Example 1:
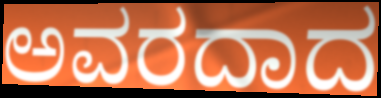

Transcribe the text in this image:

ಅವರದಾದ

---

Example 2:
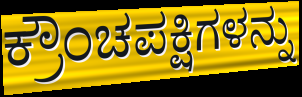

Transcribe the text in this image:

ಕ್ರೌಂಚಪಕ್ಷಿಗಳನ್ನು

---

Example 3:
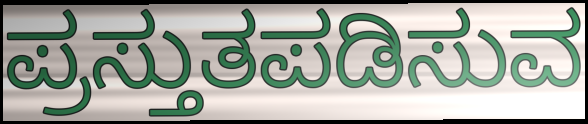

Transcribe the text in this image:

ಪ್ರಸ್ತುತಪಡಿಸುವ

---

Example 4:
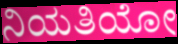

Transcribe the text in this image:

ನಿಯತಿಯೋ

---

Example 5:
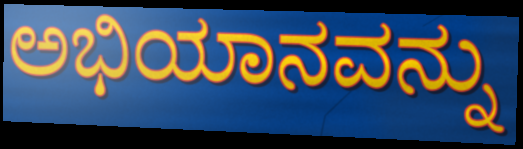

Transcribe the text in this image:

ಅಭಿಯಾನವನ್ನು